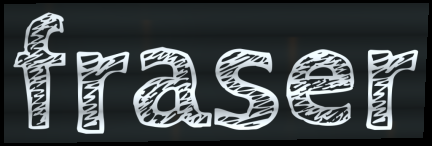
fraser